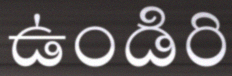
ఉండిరి